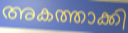
അകത്താക്കി